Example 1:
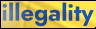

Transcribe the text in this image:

illegality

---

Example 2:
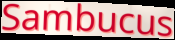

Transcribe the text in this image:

Sambucus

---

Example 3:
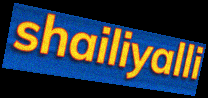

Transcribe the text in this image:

shailiyalli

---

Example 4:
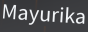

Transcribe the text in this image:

Mayurika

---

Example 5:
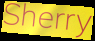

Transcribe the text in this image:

Sherry